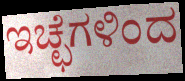
ಇಚ್ಛೆಗಳಿಂದ